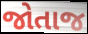
જોતાજ